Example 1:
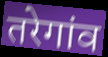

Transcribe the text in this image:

तरेगांव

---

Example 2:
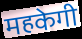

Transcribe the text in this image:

महकेगी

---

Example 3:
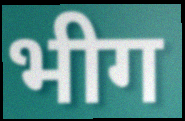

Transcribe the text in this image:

भीग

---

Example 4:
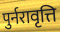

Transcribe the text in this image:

पुर्नरावृत्ति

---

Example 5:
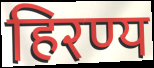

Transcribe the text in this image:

हिरण्य